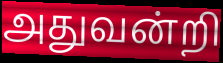
அதுவன்றி